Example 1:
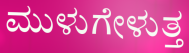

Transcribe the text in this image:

ಮುಳುಗೇಳುತ್ತ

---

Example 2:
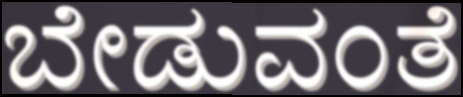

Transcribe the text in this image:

ಬೇಡುವಂತೆ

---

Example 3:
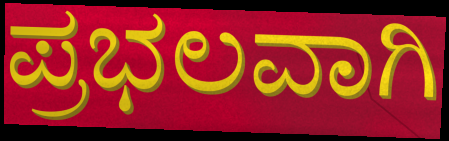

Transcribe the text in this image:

ಪ್ರಭಲವಾಗಿ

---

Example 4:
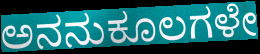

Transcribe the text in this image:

ಅನನುಕೂಲಗಳೇ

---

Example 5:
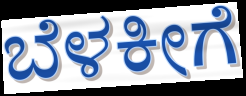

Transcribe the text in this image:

ಬೆಳಕೀಗೆ